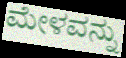
ಮೇಳವನ್ನು